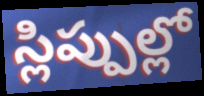
స్లిప్పుల్లో